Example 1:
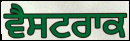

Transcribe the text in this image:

ਵੈਸਟਰਾਕ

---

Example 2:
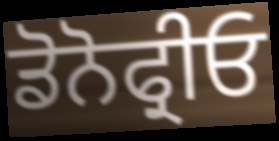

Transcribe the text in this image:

ਡੋਨੋਫ੍ਰੀਓ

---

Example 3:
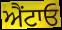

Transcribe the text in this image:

ਐਂਟਾਓ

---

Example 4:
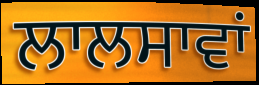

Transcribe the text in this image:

ਲਾਲਸਾਵਾਂ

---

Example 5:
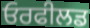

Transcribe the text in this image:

ਓਰਫੀਲਡ